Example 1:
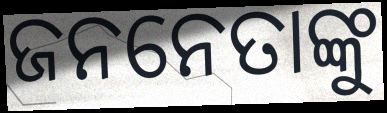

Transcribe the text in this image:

ଜନନେତାଙ୍କୁ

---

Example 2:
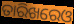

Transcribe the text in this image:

ତାରିଖରେଓ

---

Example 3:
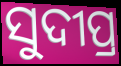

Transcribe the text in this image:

ସୁଦୀପ୍ର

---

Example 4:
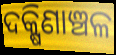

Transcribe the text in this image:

ଦକ୍ଷିଣାଞ୍ଚଳ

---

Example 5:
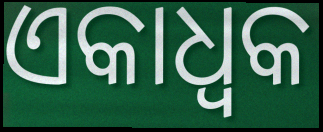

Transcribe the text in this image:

ଏକାଧ୍ଵକ